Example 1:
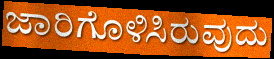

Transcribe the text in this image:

ಜಾರಿಗೊಳಿಸಿರುವುದು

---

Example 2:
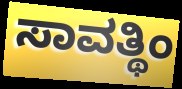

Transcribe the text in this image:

ಸಾವತ್ಥಿಂ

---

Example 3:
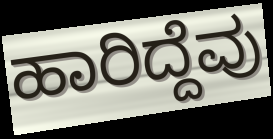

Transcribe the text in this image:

ಹಾರಿದ್ದೆವು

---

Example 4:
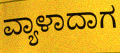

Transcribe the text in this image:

ವ್ಯಾಳಾದಾಗ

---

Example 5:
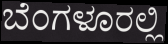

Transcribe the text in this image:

ಬೆಂಗಳೂರಲ್ಲಿ